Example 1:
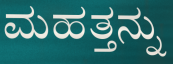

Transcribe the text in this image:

ಮಹತ್ತನ್ನು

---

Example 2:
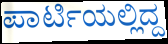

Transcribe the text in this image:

ಪಾರ್ಟಿಯಲ್ಲಿದ್ದ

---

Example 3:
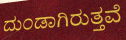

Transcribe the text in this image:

ದುಂಡಾಗಿರುತ್ತವೆ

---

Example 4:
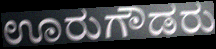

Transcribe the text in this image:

ಊರುಗೌಡರು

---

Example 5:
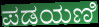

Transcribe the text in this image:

ಪಡಯಣಿ